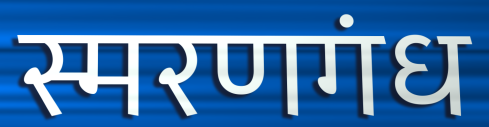
स्मरणगंध